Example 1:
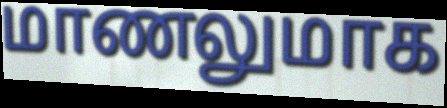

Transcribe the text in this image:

மாணலுமாக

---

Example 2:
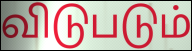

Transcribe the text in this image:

விடுபடும்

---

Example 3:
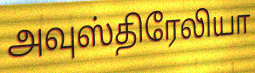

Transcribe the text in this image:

அவுஸ்திரேலியா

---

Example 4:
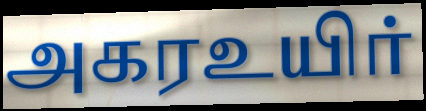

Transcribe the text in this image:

அகரஉயிர்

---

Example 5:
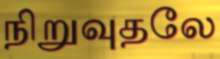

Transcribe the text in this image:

நிறுவுதலே